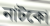
নাটকো